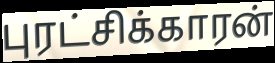
புரட்சிக்காரன்